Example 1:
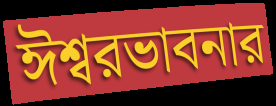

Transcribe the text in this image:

ঈশ্বরভাবনার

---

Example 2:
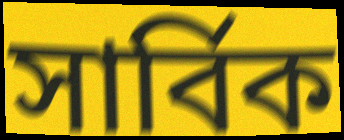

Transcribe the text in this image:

সার্বিক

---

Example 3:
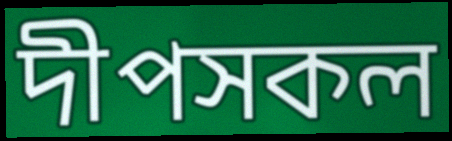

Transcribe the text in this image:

দীপসকল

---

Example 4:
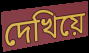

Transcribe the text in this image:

দেখিয়ে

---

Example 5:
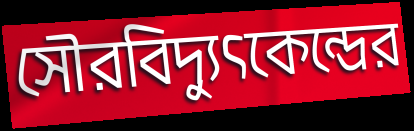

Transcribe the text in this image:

সৌরবিদ্যুৎকেন্দ্রের